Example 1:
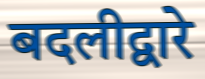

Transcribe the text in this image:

बदलीद्वारे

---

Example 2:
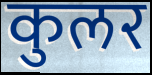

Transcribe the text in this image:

कुलर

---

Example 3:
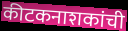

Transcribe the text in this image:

कीटकनाशकांची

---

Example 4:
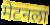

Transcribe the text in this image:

मेटनला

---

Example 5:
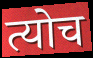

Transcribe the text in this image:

त्योच